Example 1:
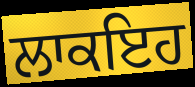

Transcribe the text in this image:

ਲਾਕਇਹ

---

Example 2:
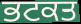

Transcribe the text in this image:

ਭਟਕਤ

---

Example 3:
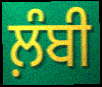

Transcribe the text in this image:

ਲ਼ੰਬੀ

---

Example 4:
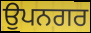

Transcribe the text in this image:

ਉਪਨਗਰ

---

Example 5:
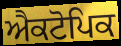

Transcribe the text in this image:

ਐਕਟੋਪਿਕ